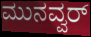
ಮುನವ್ವರ್